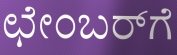
ಛೇಂಬರ್‌ಗೆ